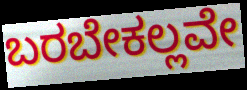
ಬರಬೇಕಲ್ಲವೇ